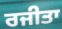
ਰਜੀਤਾ